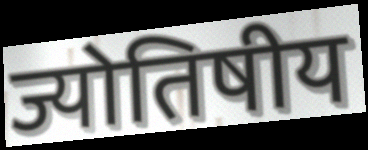
ज्योतिषीय